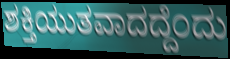
ಶಕ್ತಿಯುತವಾದದ್ದೆಂದು